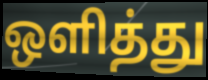
ஒளித்து